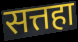
सत्तहा